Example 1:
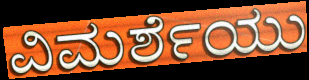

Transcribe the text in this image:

ವಿಮರ್ಶೆಯು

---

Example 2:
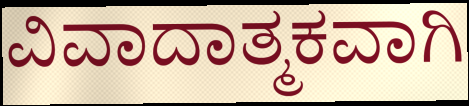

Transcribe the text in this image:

ವಿವಾದಾತ್ಮಕವಾಗಿ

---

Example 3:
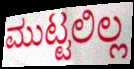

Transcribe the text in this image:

ಮುಟ್ಟಲಿಲ್ಲ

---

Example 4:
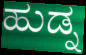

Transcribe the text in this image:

ಹುಡ್ನ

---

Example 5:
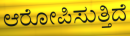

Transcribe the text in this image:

ಆರೋಪಿಸುತ್ತಿದೆ